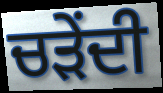
ਚੜੇਂਦੀ